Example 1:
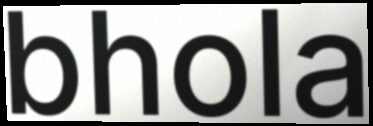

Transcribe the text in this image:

bhola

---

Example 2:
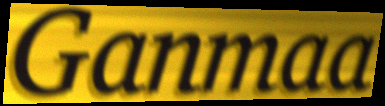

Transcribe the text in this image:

Ganmaa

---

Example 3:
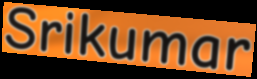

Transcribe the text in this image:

Srikumar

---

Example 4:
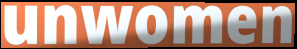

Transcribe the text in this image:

unwomen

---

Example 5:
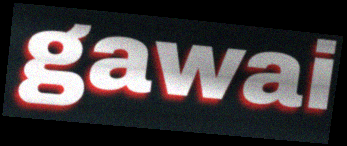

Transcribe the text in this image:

gawai